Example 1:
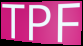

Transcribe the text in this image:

TPF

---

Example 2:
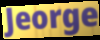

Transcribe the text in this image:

Jeorge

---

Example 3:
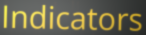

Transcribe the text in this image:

Indicators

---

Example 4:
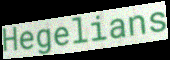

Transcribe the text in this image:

Hegelians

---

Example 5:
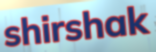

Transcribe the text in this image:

shirshak